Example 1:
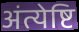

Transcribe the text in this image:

अंत्येष्टि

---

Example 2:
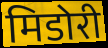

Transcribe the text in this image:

मिडोरी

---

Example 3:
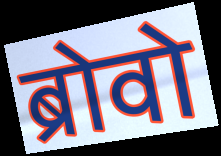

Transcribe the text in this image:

ब्रोवो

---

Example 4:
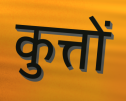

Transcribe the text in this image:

कुत्तों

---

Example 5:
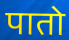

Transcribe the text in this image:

पातो